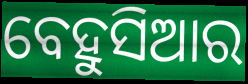
ବେହୁସିଆର